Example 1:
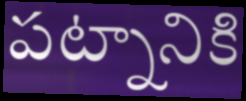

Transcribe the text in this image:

పట్నానికి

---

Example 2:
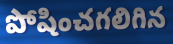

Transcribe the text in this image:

పోషించగలిగిన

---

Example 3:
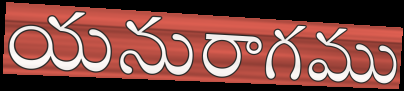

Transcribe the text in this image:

యనురాగము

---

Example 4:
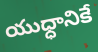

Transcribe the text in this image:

యుధ్ధానికే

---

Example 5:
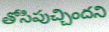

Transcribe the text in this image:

తోసిపుచ్చిందని